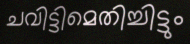
ചവിട്ടിമെതിച്ചിട്ടും